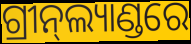
ଗ୍ରୀନ୍‍ଲ୍ୟାଣ୍ଡରେ